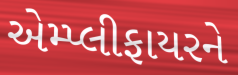
એમ્પ્લીફાયરને